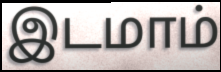
இடமாம்